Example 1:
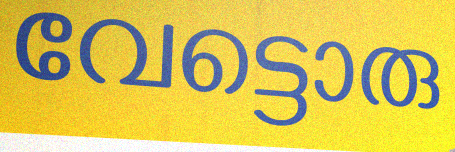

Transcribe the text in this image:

വേട്ടൊരു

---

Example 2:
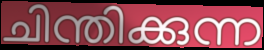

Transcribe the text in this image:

ചിന്തിക്കുന്ന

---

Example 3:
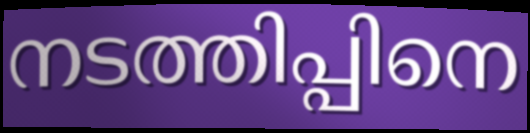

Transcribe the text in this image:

നടത്തിപ്പിനെ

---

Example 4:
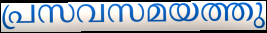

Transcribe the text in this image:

പ്രസവസമയത്തു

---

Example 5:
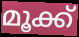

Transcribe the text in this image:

മൂക്ക്